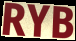
RYB